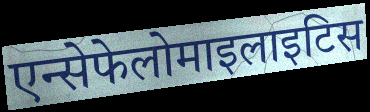
एन्सेफेलोमाइलाइटिस